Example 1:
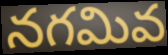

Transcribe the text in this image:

నగమివ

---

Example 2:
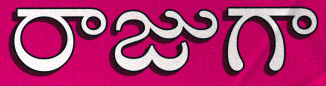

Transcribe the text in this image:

రాజుగా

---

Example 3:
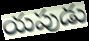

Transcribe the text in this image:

యపుడు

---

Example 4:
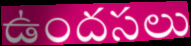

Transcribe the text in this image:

ఉందసలు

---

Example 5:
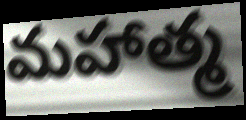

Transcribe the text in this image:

మహాత్మ